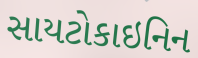
સાયટોકાઇનિન